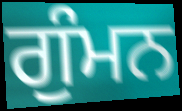
ਗੁੰਮਨ